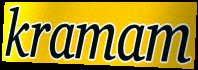
kramam